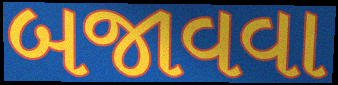
બજાવવા